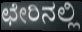
ಛೇರಿನಲ್ಲಿ